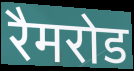
रैमरोड